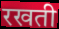
रखती